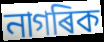
নাগৰিক